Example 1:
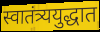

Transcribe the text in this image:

स्वातंत्र्ययुद्धात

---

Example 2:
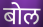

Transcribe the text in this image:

बोल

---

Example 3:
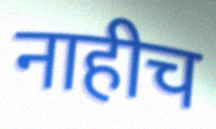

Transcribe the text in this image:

नाहीच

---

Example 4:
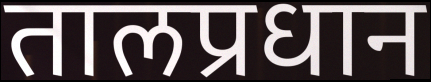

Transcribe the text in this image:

तालप्रधान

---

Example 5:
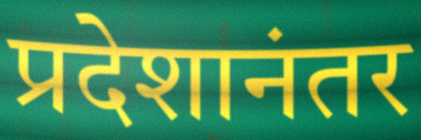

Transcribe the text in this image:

प्रदेशानंतर